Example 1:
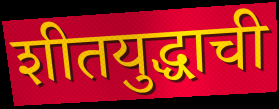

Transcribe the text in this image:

शीतयुद्धाची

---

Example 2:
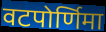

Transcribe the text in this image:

वटपोर्णिमा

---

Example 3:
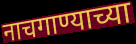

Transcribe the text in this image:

नाचगाण्याच्या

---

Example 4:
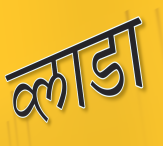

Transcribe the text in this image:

व्लाडा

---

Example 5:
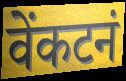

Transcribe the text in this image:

वेंकटनं